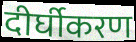
दीर्घीकरण